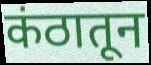
कंठातून